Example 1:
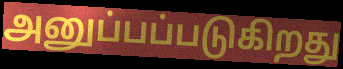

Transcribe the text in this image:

அனுப்பப்படுகிறது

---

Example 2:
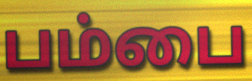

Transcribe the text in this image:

பம்பை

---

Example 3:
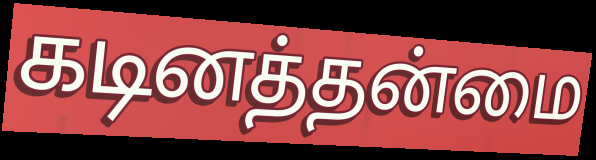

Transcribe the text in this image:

கடினத்தன்மை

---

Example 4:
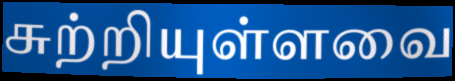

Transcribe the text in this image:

சுற்றியுள்ளவை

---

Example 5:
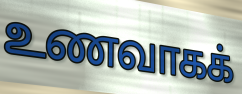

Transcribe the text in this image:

உணவாகக்